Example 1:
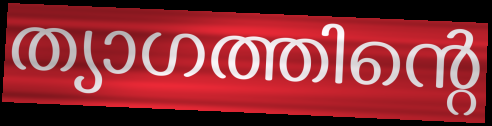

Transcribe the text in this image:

ത്യാഗത്തിന്റെ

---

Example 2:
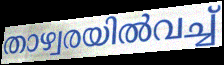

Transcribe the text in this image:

താഴ്വരയിൽവച്ച്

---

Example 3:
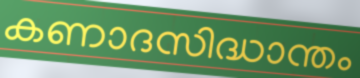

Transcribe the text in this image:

കണാദസിദ്ധാന്തം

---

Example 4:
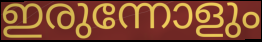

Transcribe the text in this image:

ഇരുന്നോളും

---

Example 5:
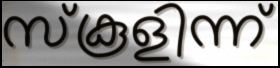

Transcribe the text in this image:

സ്കൂളിന്ന്